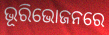
ଭୂରିଭୋଜନରେ